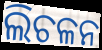
ଲିଚଳନ